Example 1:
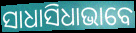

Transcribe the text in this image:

ସାଧାସିଧାଭାବେ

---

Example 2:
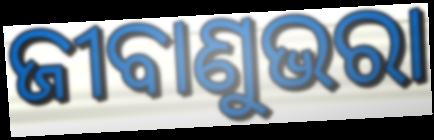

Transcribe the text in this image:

ଜୀବାଣୁଭରା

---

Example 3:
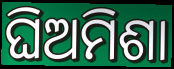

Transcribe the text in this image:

ଘିଅମିଶା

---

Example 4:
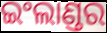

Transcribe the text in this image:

ଇଂଲାଣ୍ଡର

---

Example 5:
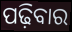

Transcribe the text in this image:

ପଢ଼ିବାର